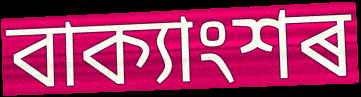
বাক্যাংশৰ